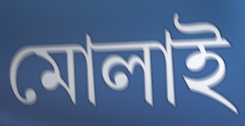
মোলাই